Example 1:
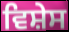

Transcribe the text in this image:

ਵਿਸ਼ੇਸ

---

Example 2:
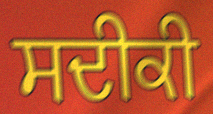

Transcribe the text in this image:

ਸਦੀਕੀ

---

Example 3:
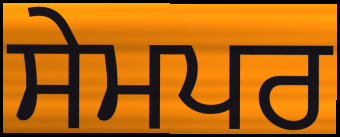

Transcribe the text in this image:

ਸੇਮਪਰ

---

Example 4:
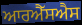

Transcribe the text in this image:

ਆਰਐੱਸਐਸ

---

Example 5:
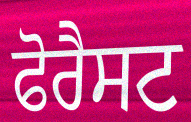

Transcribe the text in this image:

ਫੋਰੈਸਟ